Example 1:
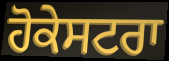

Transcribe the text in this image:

ਹੋਕੇਸਟਰਾ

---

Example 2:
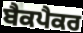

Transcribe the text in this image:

ਬੈਕਪੈਕਰ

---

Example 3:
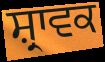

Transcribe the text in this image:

ਸ਼੍ਰਾਵਕ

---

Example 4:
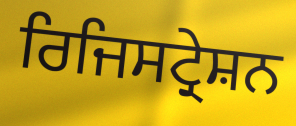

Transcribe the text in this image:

ਰਿਜਿਸਟ੍ਰੇਸ਼ਨ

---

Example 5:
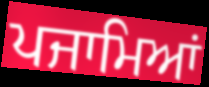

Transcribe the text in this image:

ਪਜਾਮਿਆਂ